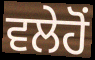
ਵਲੇਹੋਂ